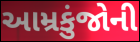
આમ્રકુંજોની